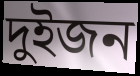
দুইজন